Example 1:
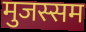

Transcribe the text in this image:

मुजस्सम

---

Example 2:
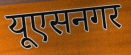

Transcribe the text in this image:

यूएसनगर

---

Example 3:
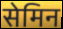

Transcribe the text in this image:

सेमिन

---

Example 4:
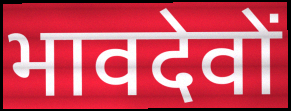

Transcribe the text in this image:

भावदेवों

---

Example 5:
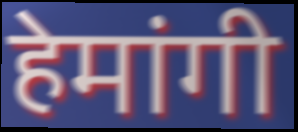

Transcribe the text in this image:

हेमांगी